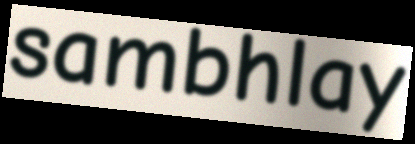
sambhlay